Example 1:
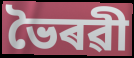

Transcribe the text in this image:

ভৈৰৱী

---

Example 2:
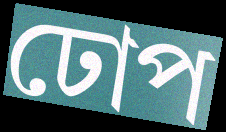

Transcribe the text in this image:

ঢোপ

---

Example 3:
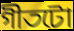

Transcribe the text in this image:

গীতটো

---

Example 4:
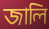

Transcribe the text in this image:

জালি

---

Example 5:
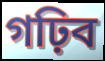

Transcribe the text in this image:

গঢ়িব